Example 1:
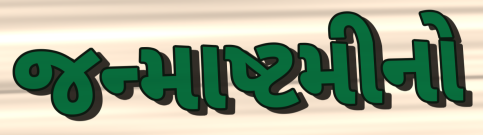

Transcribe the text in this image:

જન્માષ્ટમીનો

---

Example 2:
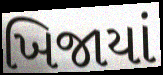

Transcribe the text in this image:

ખિજાયાં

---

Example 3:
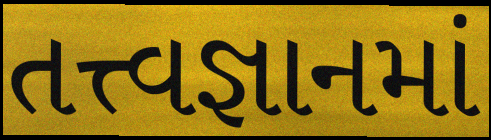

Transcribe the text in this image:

તત્ત્વજ્ઞાનમાં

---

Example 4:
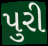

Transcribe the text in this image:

પુરી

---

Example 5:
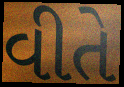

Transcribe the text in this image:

વીતે